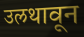
उलथावून